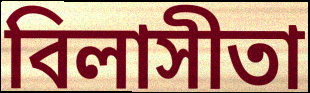
বিলাসীতা